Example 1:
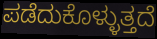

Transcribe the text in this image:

ಪಡೆದುಕೊಳ್ಳುತ್ತದೆ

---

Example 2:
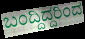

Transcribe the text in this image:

ಬಂದ್ದಿದ್ದರಿಂದ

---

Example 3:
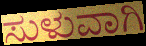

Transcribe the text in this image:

ಸುಳುವಾಗಿ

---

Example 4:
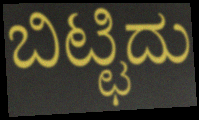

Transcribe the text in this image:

ಬಿಟ್ಟಿದು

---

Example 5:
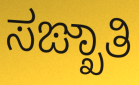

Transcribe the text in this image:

ಸಙ್ಖಾತಿ